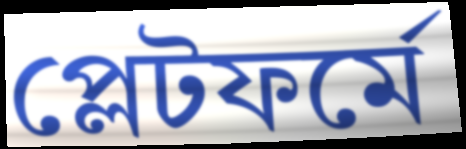
প্লেটফৰ্মে